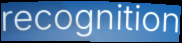
recognition